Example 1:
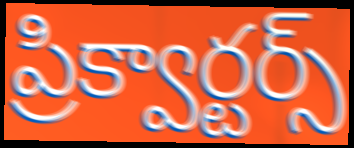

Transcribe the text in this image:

ప్రిక్వార్టర్స్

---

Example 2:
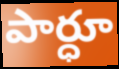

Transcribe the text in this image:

పార్ధూ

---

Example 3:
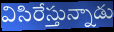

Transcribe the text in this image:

విసిరేస్తున్నాడు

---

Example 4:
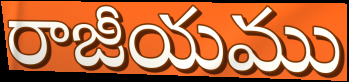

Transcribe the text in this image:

రాజీయము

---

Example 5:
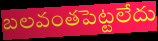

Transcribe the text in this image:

బలవంతపెట్టలేదు